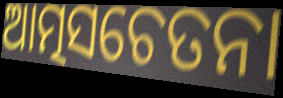
ଆତ୍ମସଚେତନା